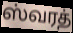
ஸ்வரத்